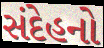
સંદેહનો